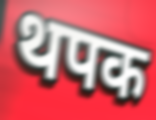
थपक